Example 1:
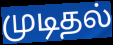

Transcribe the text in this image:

முடிதல்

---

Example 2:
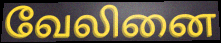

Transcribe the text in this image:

வேலினை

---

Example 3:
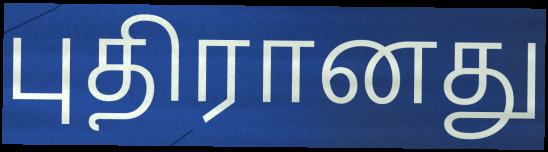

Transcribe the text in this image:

புதிரானது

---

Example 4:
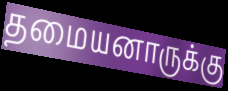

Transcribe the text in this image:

தமையனாருக்கு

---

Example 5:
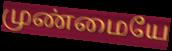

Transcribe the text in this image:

முண்மையே